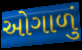
ઓગાળું